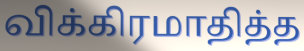
விக்கிரமாதித்த